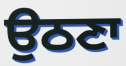
ਉਠਣਾ